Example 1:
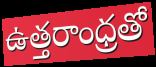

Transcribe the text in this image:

ఉత్తరాంధ్రతో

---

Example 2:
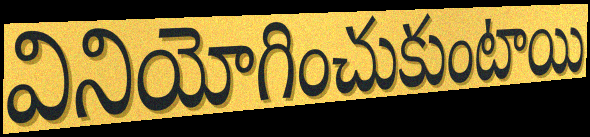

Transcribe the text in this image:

వినియోగించుకుంటాయి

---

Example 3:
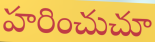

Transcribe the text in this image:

హరించుచూ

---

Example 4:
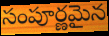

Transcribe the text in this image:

సంపూర్ణమైన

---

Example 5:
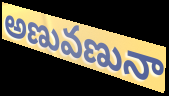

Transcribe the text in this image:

అణువణునా